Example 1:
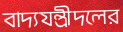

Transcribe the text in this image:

বাদ্যযন্ত্রীদলের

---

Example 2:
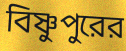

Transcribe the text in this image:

বিষ্ণুপুরের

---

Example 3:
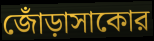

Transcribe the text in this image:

জোঁড়াসাকোর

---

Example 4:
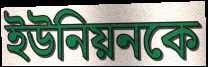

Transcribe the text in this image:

ইউনিয়নকে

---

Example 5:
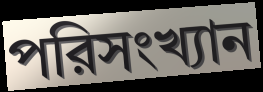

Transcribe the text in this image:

পরিসংখ্য়ান